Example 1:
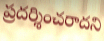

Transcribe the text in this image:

ప్రదర్శించరాదని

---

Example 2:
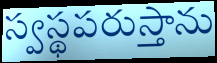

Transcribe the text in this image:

స్వస్థపరుస్తాను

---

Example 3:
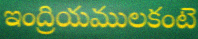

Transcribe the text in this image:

ఇంద్రియములకంటె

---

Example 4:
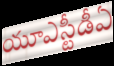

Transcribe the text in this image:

యూఎస్టీడీఏ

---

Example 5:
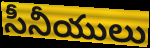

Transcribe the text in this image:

సీనీయులు